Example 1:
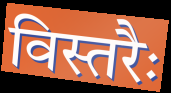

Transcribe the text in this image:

विस्तरैः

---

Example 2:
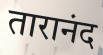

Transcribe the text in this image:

तारानंद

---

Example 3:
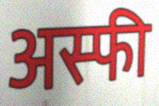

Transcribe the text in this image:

अस्फी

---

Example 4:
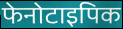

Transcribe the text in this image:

फेनोटाइपिक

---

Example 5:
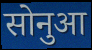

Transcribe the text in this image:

सोनुआ